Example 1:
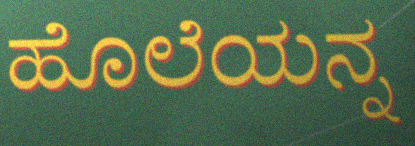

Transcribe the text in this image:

ಹೊಲೆಯನ್ನ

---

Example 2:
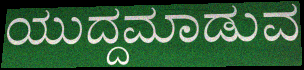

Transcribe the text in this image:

ಯುದ್ದಮಾಡುವ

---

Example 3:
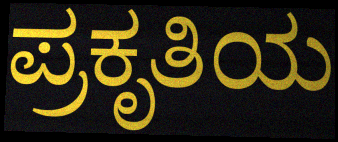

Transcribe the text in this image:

ಪ್ರಕೃತಿಯ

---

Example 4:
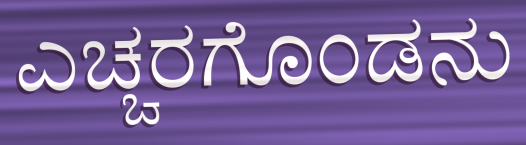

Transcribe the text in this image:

ಎಚ್ಚರಗೊಂಡನು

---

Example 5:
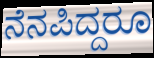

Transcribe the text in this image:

ನೆನಪಿದ್ದರೂ